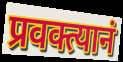
प्रवक्त्यानं